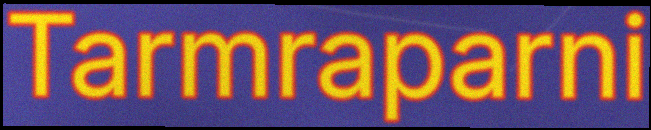
Tarmraparni